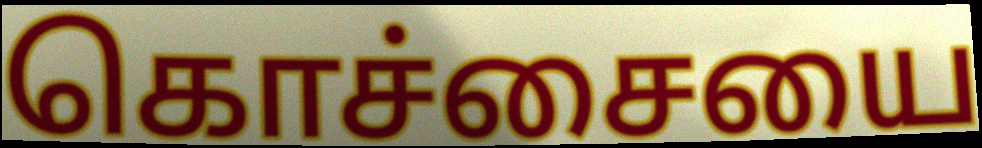
கொச்சையை